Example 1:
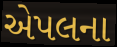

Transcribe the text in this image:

એપલના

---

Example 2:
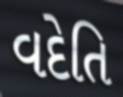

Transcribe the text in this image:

વદેતિ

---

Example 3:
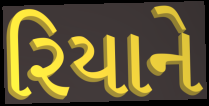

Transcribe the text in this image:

રિયાને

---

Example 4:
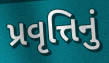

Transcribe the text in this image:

પ્રવૃત્તિનું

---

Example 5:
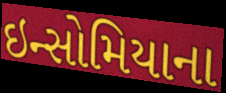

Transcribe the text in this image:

ઇન્સોમિયાના